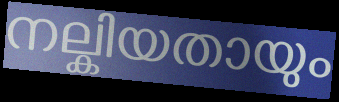
നല്കിയതായും